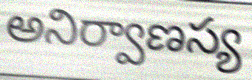
అనిర్వాణస్య